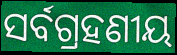
ସର୍ବଗ୍ରହଣୀୟ